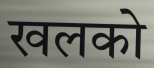
खलको